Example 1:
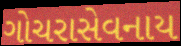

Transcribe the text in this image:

ગોચરાસેવનાય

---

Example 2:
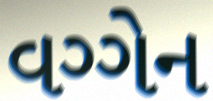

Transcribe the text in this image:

વગ્ગેન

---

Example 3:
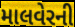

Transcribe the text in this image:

માલવેરની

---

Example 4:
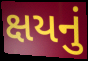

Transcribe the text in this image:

ક્ષયનું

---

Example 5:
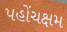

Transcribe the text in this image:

પહોંચક્ષમ